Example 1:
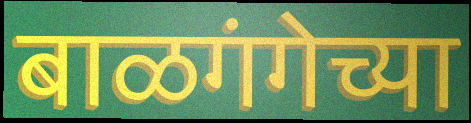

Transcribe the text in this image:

बाळगंगेच्या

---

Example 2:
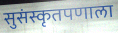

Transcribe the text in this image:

सुसंस्कृतपणाला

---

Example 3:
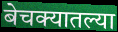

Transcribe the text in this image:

बेचक्यातल्या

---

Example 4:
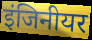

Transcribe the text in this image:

इंजिनीयर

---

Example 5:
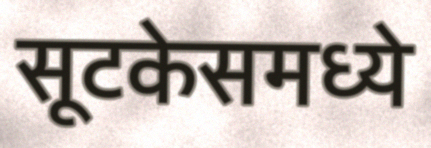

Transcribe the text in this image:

सूटकेसमध्ये